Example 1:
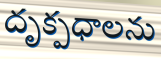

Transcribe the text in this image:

దృక్పధాలను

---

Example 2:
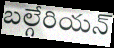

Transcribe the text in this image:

బల్గేరియన్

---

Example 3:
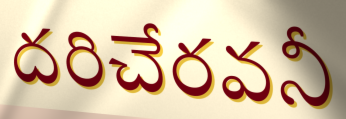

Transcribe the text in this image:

దరిచేరవనీ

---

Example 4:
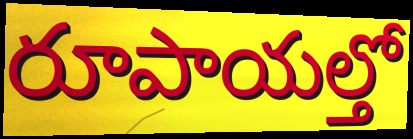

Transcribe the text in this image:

రూపాయల్తో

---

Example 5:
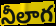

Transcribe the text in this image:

నీలాగ